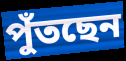
পুঁতছেন